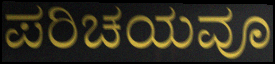
ಪರಿಚಯವೂ